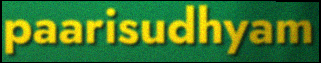
paarisudhyam